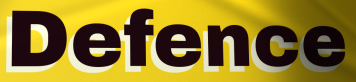
Defence